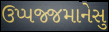
ઉપ્પજ્જમાનેસુ